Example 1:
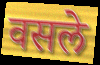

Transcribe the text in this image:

वसले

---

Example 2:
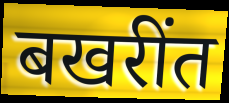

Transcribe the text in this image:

बखरींत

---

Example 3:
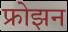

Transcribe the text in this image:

फ्रोझन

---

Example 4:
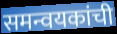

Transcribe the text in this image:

समन्वयकांची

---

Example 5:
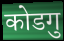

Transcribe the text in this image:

कोडगु